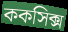
ককসিক্স